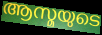
ആസ്മയുടെ